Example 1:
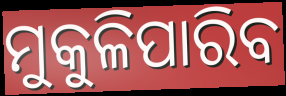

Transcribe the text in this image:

ମୁକୁଳିପାରିବ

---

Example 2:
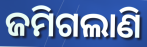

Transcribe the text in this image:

ଜମିଗଲାଣି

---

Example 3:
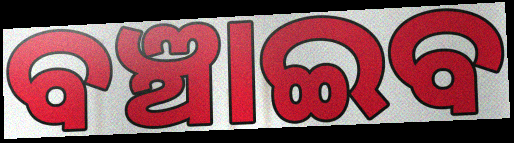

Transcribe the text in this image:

ବଞ୍ଚାଇବ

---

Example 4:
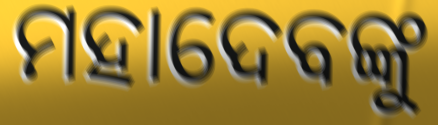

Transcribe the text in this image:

ମହାଦେବଙ୍କୁ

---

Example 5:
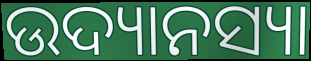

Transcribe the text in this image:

ଉଦ୍ୟାନସ୍ୟା